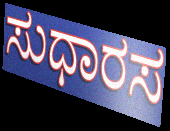
ಸುಧಾರಸ